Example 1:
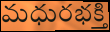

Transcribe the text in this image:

మధురభక్తి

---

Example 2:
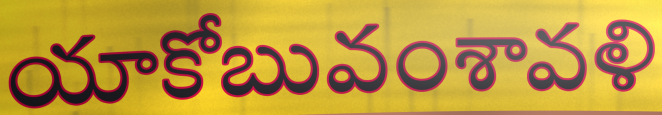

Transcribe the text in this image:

యాకోబువంశావళి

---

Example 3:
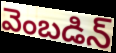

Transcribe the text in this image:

వెంబడిన్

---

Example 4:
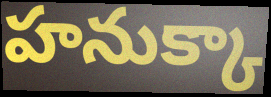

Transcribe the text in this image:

హనుక్కా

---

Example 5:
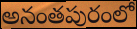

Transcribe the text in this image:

అనంతపురంలో